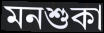
মনশুকা